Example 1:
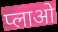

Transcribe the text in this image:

प्लाओ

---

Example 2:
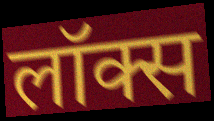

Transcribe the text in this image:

लॉक्स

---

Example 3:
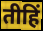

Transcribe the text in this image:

तीहिं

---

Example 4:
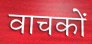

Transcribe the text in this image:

वाचकों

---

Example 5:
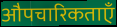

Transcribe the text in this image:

औपचारिकताएँ